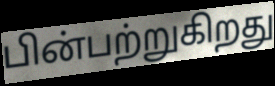
பின்பற்றுகிறது